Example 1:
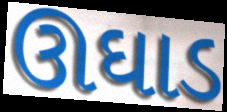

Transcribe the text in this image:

ઊઘાડ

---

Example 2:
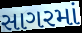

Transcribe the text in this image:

સાગરમાં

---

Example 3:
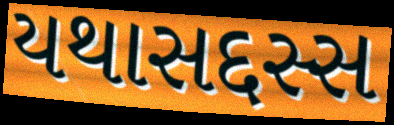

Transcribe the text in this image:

યથાસદ્દસ્સ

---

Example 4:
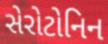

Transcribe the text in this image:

સેરોટોનિન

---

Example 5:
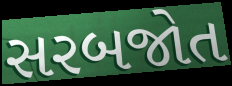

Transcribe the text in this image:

સરબજોત